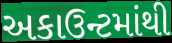
અકાઉન્ટમાંથી